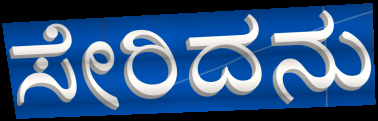
ಸೇರಿದನು